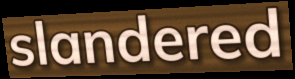
slandered